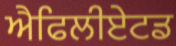
ਐਫਿਲੀਏਟਡ